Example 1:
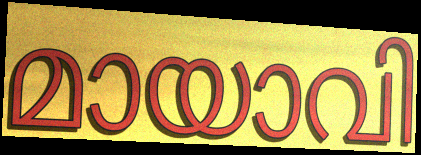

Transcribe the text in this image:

മായാവി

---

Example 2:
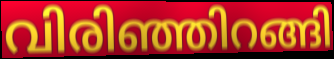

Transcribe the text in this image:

വിരിഞ്ഞിറങ്ങി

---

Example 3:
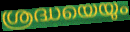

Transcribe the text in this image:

ശ്രദ്ധയെയും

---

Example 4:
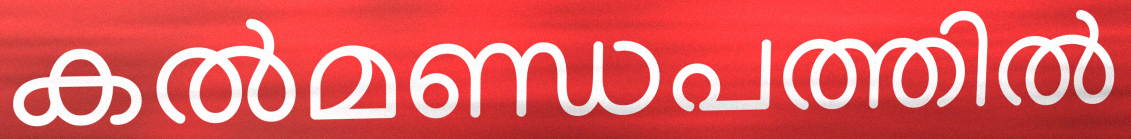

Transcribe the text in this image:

കൽമണ്ഡപത്തിൽ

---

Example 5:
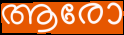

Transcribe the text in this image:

ആരോ